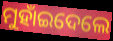
ମୁହାଁଇଦେଲେ